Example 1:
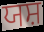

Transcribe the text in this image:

ਯਸ਼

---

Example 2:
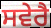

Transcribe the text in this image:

ਸਵੇਰੈ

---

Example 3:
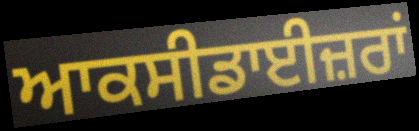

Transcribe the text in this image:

ਆਕਸੀਡਾਈਜ਼ਰਾਂ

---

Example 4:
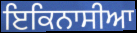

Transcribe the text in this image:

ਇਕਿਨਾਸੀਆ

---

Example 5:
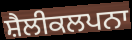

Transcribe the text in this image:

ਸ਼ੈਲੀਕਲਪਨਾ